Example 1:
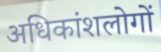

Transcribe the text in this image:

अधिकांशलोगों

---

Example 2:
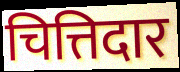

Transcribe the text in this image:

चित्तिदार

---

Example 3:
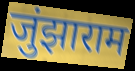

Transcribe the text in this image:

जुंझाराम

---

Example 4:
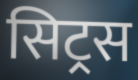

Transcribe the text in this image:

सिट्रस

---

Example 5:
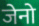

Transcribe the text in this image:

जेनो